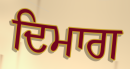
ਦਿਮਾਗ